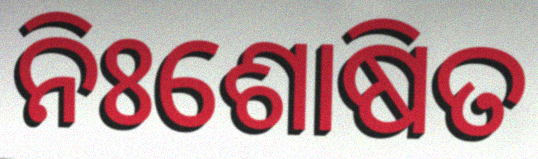
ନିଃଶୋଷିତ